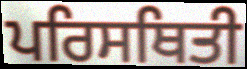
ਪਰਿਸਥਿਤੀ